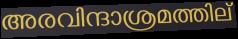
അരവിന്ദാശ്രമത്തില്